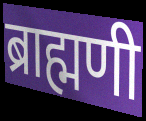
ब्राह्मणी